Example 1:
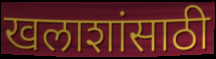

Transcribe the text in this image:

खलाशांसाठी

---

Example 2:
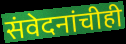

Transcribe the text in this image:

संवेदनांचीही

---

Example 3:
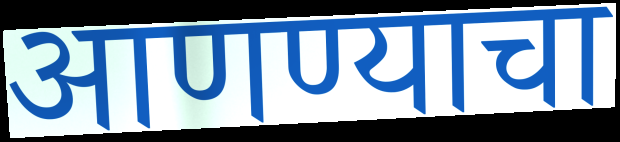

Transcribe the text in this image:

आणण्याचा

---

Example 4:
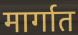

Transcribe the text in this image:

मार्गात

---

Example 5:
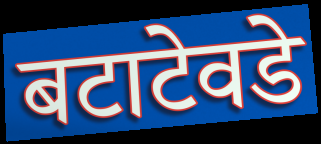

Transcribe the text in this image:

बटाटेवडे